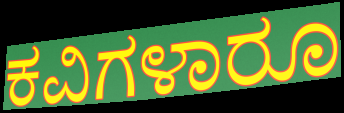
ಕವಿಗಳಾರೂ